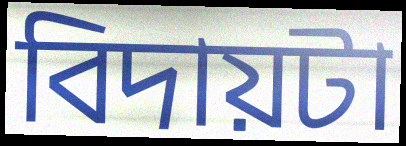
বিদায়টা